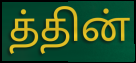
த்தின்